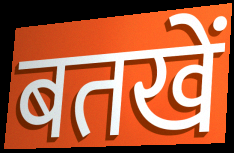
बतखें